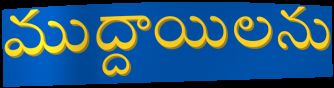
ముద్దాయిలను